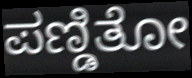
ಪಣ್ಡಿತೋ